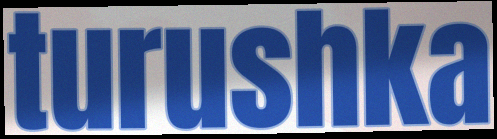
turushka